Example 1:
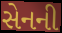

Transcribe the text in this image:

સેનની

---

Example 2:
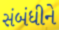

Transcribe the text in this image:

સંબંધીને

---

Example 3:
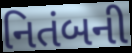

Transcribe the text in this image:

નિતંબની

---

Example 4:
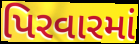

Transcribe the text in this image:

પિરવારમાં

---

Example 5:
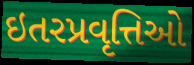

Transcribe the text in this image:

ઇતરપ્રવૃત્તિઓ